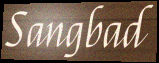
Sangbad